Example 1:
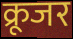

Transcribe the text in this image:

क्रूजर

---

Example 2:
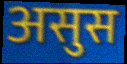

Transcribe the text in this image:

असुस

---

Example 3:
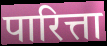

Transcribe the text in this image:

पारित्ता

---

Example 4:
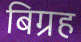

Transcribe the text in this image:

बिग्रह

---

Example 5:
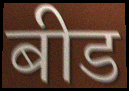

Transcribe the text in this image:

बीड